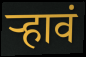
र्‍हावं